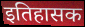
इतिहासक